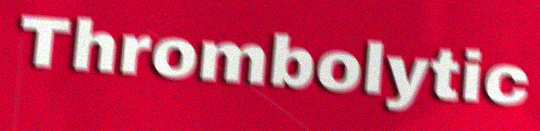
Thrombolytic